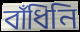
বাঁধিনি